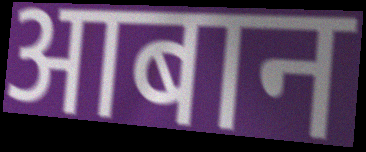
आबान